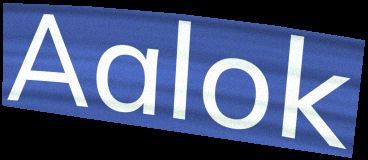
Aalok